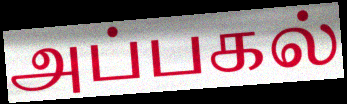
அப்பகல்